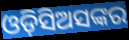
ଓଡ଼ିସିଅସଙ୍କର